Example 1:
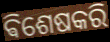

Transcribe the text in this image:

ଵିଶେଷକରି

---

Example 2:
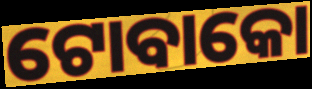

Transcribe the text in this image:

ଟୋବାକୋ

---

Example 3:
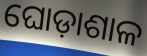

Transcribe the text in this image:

ଘୋଡ଼ାଶାଳ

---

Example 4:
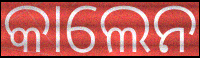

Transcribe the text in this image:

କାଲେନ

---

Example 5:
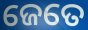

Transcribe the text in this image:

ଜେତେ